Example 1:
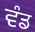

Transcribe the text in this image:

ਵੰਡ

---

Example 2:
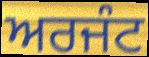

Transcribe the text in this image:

ਅਰਜੰਟ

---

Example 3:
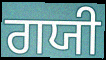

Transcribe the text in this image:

ਗਯੀ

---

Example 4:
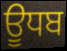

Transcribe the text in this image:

ਊਧਬ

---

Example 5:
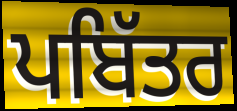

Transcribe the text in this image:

ਪਬਿੱਤਰ